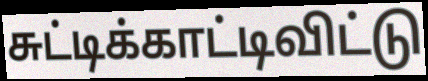
சுட்டிக்காட்டிவிட்டு